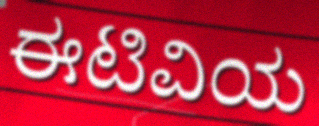
ಈಟಿವಿಯ